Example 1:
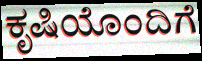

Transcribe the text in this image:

ಕೃಷಿಯೊಂದಿಗೆ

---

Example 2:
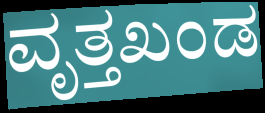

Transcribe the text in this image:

ವೃತ್ತಖಂಡ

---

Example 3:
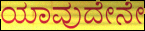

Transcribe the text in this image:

ಯಾವುದೇನೇ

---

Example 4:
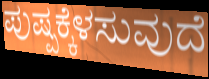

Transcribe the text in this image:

ಪುಷ್ಪಕ್ಕೆಳಸುವುದೆ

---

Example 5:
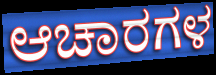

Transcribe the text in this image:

ಆಚಾರಗಳ